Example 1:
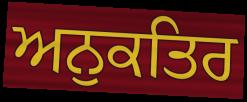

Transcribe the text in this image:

ਅਨੁਕਤਿਰ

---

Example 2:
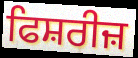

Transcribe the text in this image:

ਫਿਸ਼ਰੀਜ਼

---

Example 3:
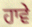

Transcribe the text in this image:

ਹਾਵੇ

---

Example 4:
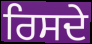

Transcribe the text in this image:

ਰਿਸਦੇ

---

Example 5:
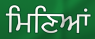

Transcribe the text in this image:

ਮਿਣਿਆਂ